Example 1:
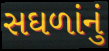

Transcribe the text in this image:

સઘળાંનું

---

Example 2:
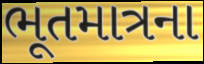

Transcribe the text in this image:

ભૂતમાત્રના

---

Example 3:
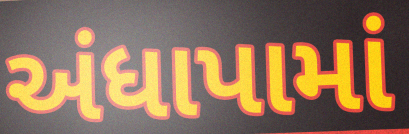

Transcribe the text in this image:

અંધાપામાં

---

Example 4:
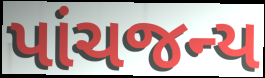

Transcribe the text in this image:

પાંચજન્ય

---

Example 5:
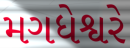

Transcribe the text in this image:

મગધેશ્વરે